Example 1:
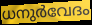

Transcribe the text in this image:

ധനുർവേദം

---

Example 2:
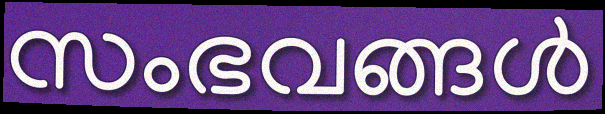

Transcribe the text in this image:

സംഭവങ്ങൾ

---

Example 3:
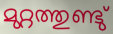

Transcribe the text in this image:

മുറ്റത്തുണ്ടു്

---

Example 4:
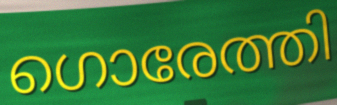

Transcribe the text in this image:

ഗൊരേത്തി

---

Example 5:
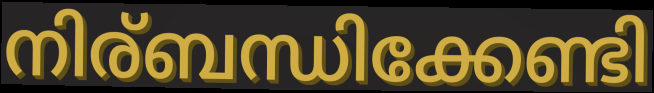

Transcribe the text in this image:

നിര്ബന്ധിക്കേണ്ടി